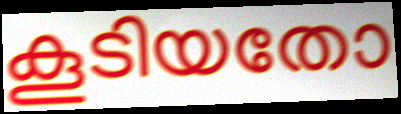
കൂടിയതോ